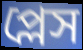
প্লেস